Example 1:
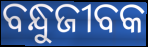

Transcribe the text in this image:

ବନ୍ଧୁଜୀବକ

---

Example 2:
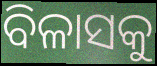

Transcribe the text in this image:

ବିଳାସକୁ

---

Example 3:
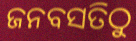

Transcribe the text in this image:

ଜନବସତିଠୁ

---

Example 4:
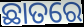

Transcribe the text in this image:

ଛାତରେ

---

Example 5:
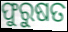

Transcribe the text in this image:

ଫୁରୁଷତ